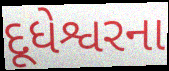
દૂધેશ્વરના